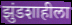
झुंडशाहीला